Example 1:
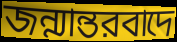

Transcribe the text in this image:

জন্মান্তরবাদে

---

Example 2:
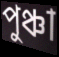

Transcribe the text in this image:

পুঞ্চা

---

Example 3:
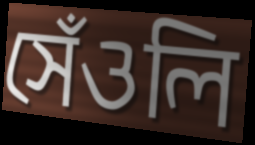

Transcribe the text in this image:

সেঁওলি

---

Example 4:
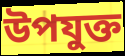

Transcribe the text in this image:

উপযুক্ত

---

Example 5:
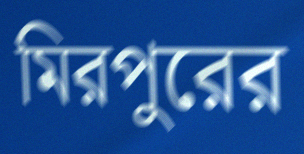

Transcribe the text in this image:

মিরপুরের